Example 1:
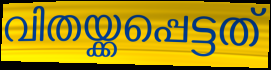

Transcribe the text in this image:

വിതയ്ക്കപ്പെട്ടത്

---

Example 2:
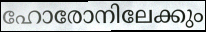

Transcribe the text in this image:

ഹോരോനിലേക്കും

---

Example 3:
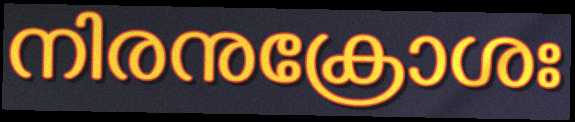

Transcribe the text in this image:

നിരനുക്രോശഃ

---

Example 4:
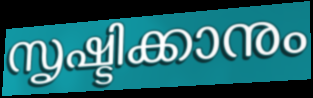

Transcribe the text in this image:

സൃഷ്ടിക്കാനും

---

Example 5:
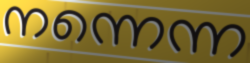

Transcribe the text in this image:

നന്നെന്ന